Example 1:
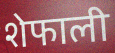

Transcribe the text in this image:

शेफाली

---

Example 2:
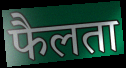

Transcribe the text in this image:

फैलता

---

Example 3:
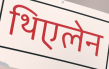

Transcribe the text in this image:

थिएलेन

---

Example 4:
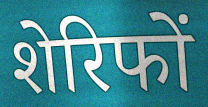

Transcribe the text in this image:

शेरिफों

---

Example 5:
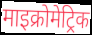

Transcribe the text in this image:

माइक्रोमेट्रिक